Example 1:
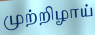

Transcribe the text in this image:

முற்றிழாய்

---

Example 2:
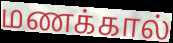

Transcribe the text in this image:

மணக்கால்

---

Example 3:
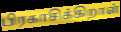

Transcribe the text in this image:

பிரகாசிக்கிறாள்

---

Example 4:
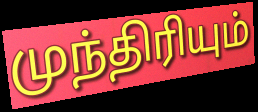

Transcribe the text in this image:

முந்திரியும்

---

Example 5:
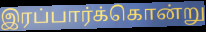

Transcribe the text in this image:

இரப்பார்க்கொன்று